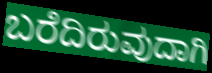
ಬರೆದಿರುವುದಾಗಿ